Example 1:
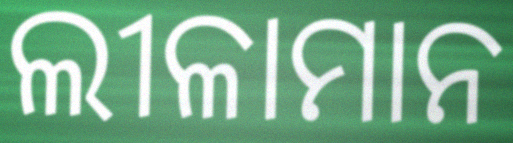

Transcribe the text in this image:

ଲୀଳାମାନ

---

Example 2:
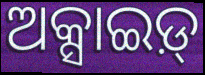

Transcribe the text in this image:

ଅକ୍ସାଇଡ଼୍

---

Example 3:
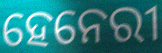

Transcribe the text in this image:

ହେନେରୀ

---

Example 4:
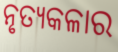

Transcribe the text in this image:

ନୃତ୍ୟକଳାର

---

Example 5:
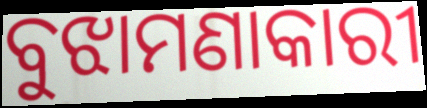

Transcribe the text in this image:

ବୁଝାମଣାକାରୀ